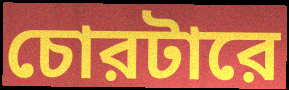
চোরটারে